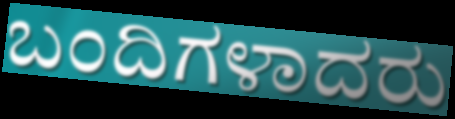
ಬಂದಿಗಳಾದರು